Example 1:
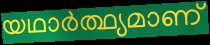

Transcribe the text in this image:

യഥാർത്ഥ്യമാണ്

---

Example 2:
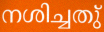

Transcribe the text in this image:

നശിച്ചതു്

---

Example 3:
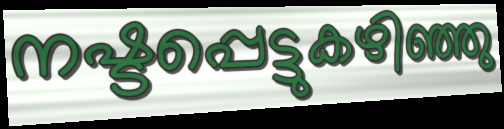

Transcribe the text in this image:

നഷ്ടപ്പെട്ടുകഴിഞ്ഞു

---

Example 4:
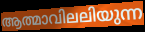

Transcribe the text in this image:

ആത്മാവിലലിയുന്ന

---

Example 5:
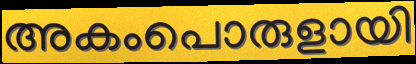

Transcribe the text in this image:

അകംപൊരുളായി